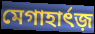
মেগাহার্ৎজ়